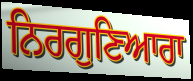
ਨਿਰਗੁਣਿਆਰਾ